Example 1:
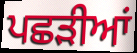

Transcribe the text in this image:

ਪਛੜੀਆਂ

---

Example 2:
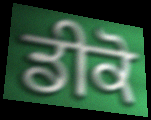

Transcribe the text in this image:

ਡੀਕੋ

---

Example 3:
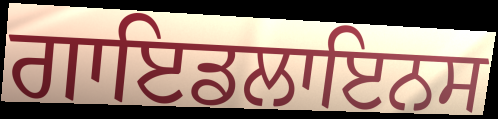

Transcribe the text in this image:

ਗਾਇਡਲਾਇਨਸ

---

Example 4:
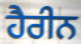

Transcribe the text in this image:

ਹੈਰੀਨ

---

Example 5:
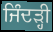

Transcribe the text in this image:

ਜਿੰਦੜ੍ਹੀ